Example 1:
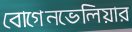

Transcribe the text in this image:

বোগেনভেলিয়ার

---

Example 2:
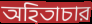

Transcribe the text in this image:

অহিতাচার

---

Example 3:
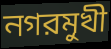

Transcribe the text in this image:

নগরমুখী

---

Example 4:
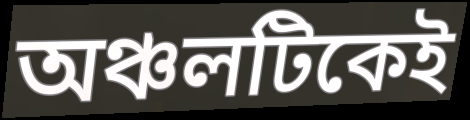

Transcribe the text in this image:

অঞ্চলটিকেই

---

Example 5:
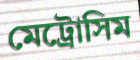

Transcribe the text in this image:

মেট্রোসিম